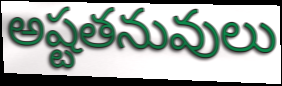
అష్టతనువులు